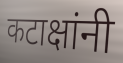
कटाक्षांनी